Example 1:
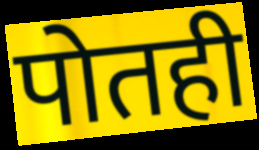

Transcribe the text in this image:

पोतही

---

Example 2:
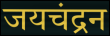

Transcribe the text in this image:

जयचंद्रन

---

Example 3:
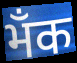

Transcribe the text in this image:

भँक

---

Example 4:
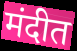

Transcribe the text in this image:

मंदीत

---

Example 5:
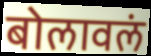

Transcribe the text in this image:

बोलावलं